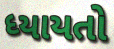
ધ્યાયતો